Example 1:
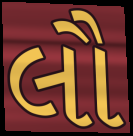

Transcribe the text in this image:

લૌ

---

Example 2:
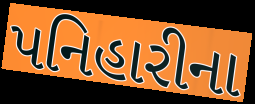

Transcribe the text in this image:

પનિહારીના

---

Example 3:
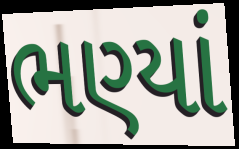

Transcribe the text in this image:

ભણ્યાં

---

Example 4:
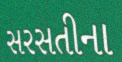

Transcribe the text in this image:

સરસતીના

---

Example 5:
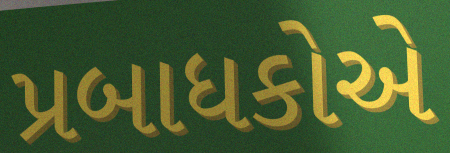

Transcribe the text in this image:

પ્રબાધકોએ